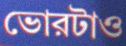
ভোরটাও